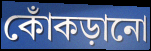
কোঁকড়ানো